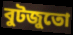
বুটজুতো